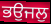
ਭਉਜਲੁ